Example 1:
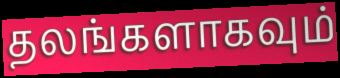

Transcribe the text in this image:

தலங்களாகவும்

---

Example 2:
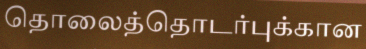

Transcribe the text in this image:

தொலைத்தொடர்புக்கான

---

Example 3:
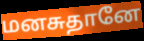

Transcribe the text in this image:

மனசுதானே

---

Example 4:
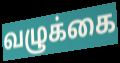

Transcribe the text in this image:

வழுக்கை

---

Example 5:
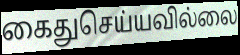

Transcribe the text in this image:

கைதுசெய்யவில்லை